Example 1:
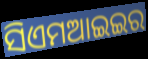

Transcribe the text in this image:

ସିଏମଆଇଇର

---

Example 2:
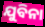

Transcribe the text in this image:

ଯୁବିନା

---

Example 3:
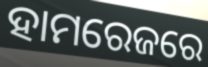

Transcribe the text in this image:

ହାମରେଜରେ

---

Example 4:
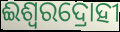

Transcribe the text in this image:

ଈଶ୍ଵରଦ୍ରୋହୀ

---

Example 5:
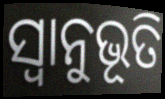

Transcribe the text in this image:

ସ୍ଵାନୁଭୂତି